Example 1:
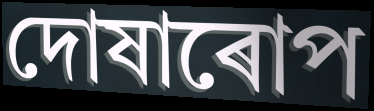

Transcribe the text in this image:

দোষাৰোপ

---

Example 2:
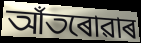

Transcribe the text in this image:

আঁতৰোৱাৰ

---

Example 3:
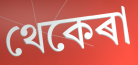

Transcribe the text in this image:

থেকেৰা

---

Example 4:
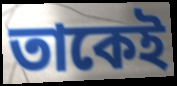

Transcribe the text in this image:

তাকেই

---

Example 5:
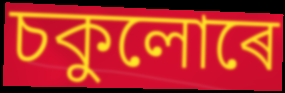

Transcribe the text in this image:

চকুলোৰে